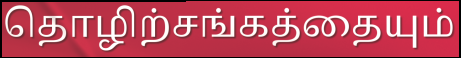
தொழிற்சங்கத்தையும்